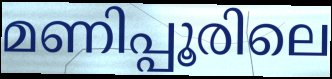
മണിപ്പൂരിലെ